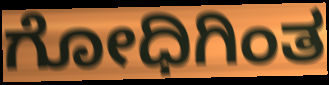
ಗೋಧಿಗಿಂತ